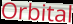
Orbital